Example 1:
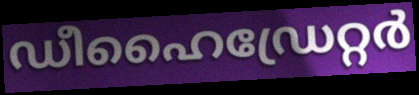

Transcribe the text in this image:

ഡീഹൈഡ്രേറ്റർ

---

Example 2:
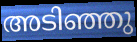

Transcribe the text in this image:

അടിഞ്ഞു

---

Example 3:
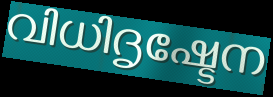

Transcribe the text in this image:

വിധിദൃഷ്ടേന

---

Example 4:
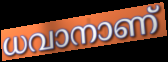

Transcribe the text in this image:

ധവാനാണ്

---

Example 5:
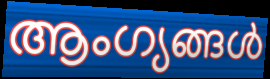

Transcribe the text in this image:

ആംഗ്യങ്ങൾ